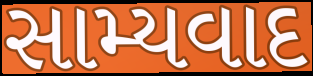
સામ્યવાદ